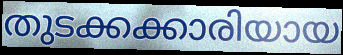
തുടക്കക്കാരിയായ